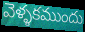
వెళ్ళకముందు